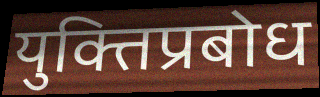
युक्तिप्रबोध